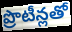
ప్రొటీన్లతో